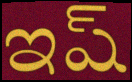
ఇష్